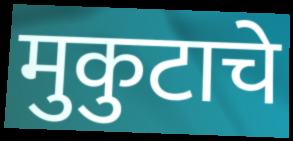
मुकुटाचे